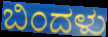
ಬಿಂದಳು